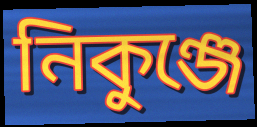
নিকুঞ্জে